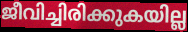
ജീവിച്ചിരിക്കുകയില്ല